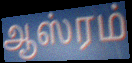
ஆஸ்ரம்